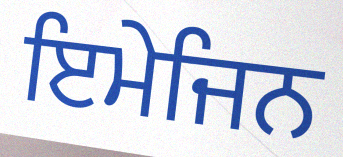
ਇਮੇਜਿਨ